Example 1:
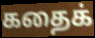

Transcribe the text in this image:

கதைக்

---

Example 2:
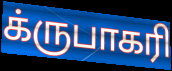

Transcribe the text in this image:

க்ருபாகரி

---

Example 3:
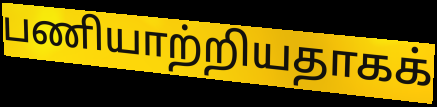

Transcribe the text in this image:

பணியாற்றியதாகக்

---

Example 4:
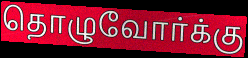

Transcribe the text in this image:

தொழுவோர்க்கு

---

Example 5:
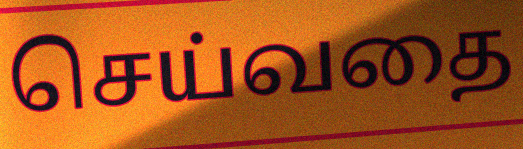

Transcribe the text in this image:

செய்வதை